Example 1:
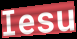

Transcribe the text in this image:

Iesu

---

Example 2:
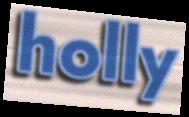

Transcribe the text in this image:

holly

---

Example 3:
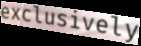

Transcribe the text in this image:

exclusively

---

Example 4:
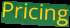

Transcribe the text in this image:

Pricing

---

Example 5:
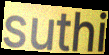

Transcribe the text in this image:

suthi